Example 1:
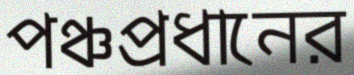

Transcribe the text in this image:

পঞ্চপ্রধানের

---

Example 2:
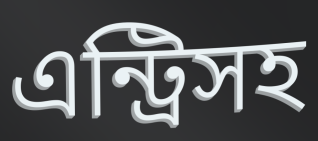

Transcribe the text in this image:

এন্ট্রিসহ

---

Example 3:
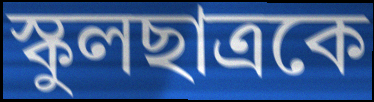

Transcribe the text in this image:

স্কুলছাত্রকে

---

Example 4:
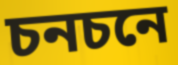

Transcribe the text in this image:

চনচনে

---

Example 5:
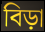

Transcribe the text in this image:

বিড়া